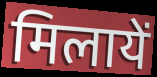
मिलायें